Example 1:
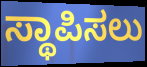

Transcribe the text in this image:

ಸ್ಥಾಪಿಸಲು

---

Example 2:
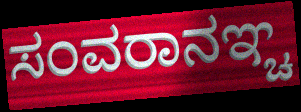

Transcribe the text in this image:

ಸಂವರಾನಞ್ಚ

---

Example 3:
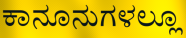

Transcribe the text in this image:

ಕಾನೂನುಗಳಲ್ಲೂ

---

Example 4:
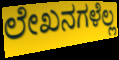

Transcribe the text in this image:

ಲೇಖನಗಳೆಲ್ಲ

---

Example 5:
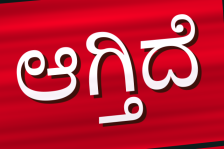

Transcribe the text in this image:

ಆಗ್ತಿದೆ